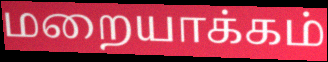
மறையாக்கம்